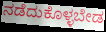
ನಡೆದುಕೊಳ್ಳಬೇಡ